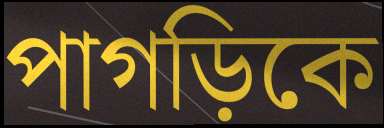
পাগড়িকে